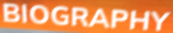
BIOGRAPHY